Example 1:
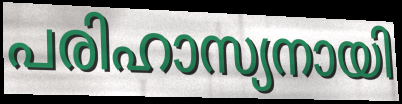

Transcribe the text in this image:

പരിഹാസ്യനായി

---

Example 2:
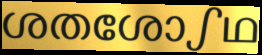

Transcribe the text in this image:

ശതശോഽഥ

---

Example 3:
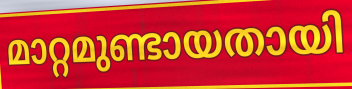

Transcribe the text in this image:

മാറ്റമുണ്ടായതായി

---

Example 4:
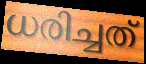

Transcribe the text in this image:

ധരിച്ചത്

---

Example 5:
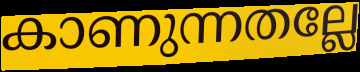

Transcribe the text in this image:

കാണുന്നതല്ലേ